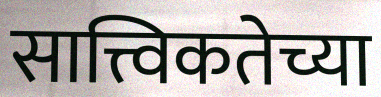
सात्त्विकतेच्या